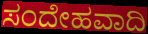
ಸಂದೇಹವಾದಿ